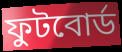
ফুটবোর্ড